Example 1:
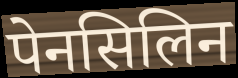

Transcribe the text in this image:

पेनसिलिन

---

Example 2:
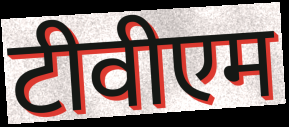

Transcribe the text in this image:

टीवीएम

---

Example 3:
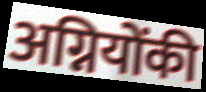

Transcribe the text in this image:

अग्नियोंकी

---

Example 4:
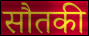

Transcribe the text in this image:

सौतकी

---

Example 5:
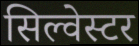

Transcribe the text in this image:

सिल्वेस्टर